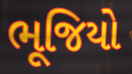
ભૂજિયો